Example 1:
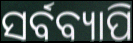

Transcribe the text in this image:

ସର୍ବବ୍ୟାପି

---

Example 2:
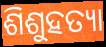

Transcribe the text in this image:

ଶିଶୁହତ୍ୟା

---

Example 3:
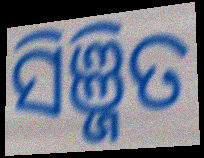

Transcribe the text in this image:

ସିଞ୍ଜିତ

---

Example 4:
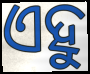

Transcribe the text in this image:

ଏହୁ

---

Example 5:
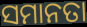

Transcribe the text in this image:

ସମାନତା